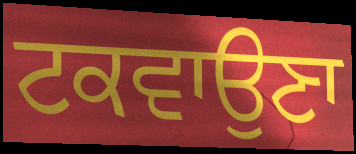
ਟਕਵਾਉਣਾ